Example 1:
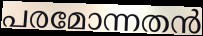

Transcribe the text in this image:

പരമോന്നതൻ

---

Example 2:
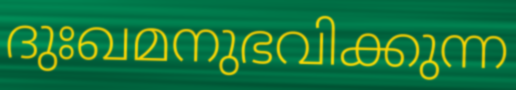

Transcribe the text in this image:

ദുഃഖമനുഭവിക്കുന്ന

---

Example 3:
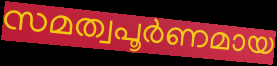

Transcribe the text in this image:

സമത്വപൂർണമായ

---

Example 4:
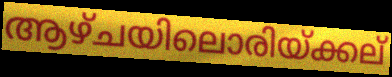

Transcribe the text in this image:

ആഴ്ചയിലൊരിയ്ക്കല്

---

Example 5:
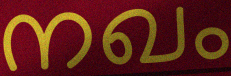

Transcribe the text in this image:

നഖം